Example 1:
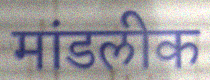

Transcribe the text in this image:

मांडलीक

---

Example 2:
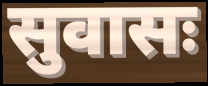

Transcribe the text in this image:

सुवासः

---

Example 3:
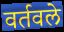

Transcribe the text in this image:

वर्तवले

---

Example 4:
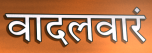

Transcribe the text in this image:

वादलवारं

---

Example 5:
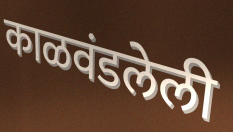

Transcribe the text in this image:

काळवंडलेली